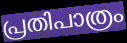
പ്രതിപാത്രം